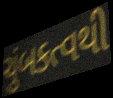
ચુંબકત્વથી